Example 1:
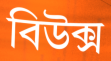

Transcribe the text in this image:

বিউক্স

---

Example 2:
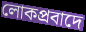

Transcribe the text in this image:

লোকপ্রবাদে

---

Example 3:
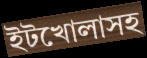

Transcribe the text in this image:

ইটখোলাসহ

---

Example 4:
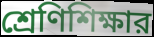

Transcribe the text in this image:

শ্রেণিশিক্ষার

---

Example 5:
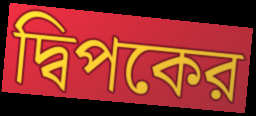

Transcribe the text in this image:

দ্বিপকের